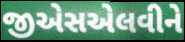
જીએસએલવીને